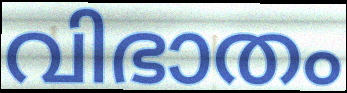
വിഭാതം